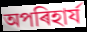
অপৰিহাৰ্য